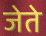
जेते